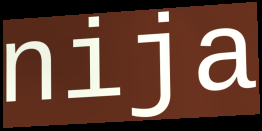
nija